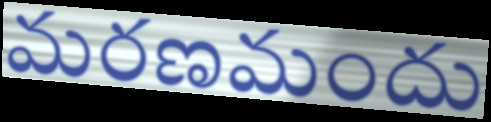
మరణమందు